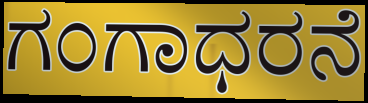
ಗಂಗಾಧರನೆ